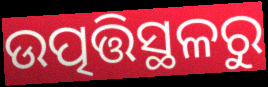
ଉତ୍ପତ୍ତିସ୍ଥଳରୁ